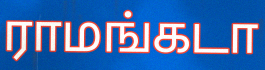
ராமங்கடா